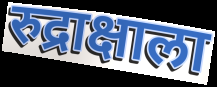
रुद्राक्षाला